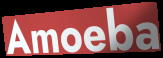
Amoeba